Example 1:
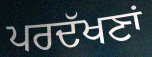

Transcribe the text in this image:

ਪਰਦੱਖਣਾਂ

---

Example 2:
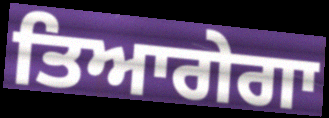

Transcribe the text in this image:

ਤਿਆਗੇਗਾ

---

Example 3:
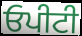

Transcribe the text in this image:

ਓਪੀਟੀ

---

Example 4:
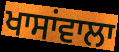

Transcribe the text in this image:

ਖਾਸਾਂਵਾਲਾ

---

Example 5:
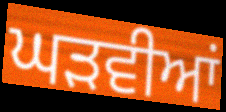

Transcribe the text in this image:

ਘੜਵੀਆਂ